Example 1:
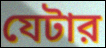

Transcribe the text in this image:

যেটার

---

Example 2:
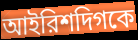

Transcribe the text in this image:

আইরিশদিগকে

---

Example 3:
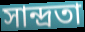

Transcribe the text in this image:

সান্দ্রতা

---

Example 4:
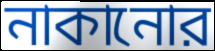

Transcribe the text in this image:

নাকানোর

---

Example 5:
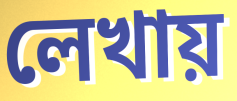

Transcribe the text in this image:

লেখায়